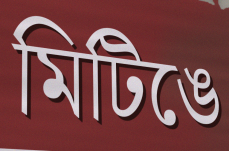
মিটিঙে